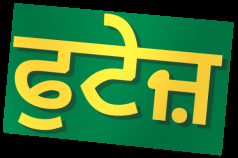
ਫੁਟੇਜ਼